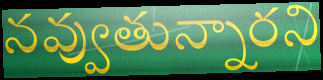
నవ్వుతున్నారని